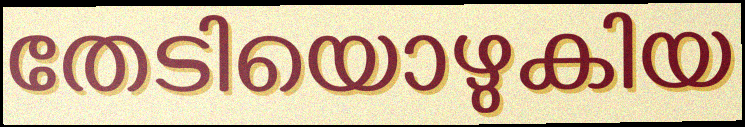
തേടിയൊഴുകിയ